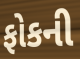
ફોકની